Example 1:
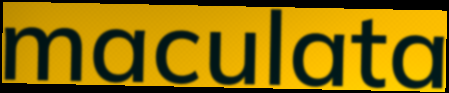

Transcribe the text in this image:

maculata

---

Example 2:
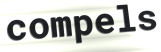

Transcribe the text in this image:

compels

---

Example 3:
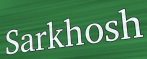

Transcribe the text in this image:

Sarkhosh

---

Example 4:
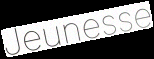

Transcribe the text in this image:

Jeunesse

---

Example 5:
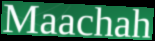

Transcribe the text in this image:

Maachah